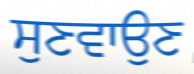
ਸੁਣਵਾਉਣ